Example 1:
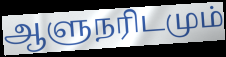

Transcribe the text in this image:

ஆளுநரிடமும்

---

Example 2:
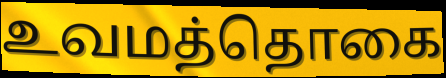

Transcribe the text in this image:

உவமத்தொகை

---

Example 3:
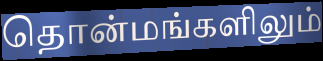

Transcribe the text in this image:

தொன்மங்களிலும்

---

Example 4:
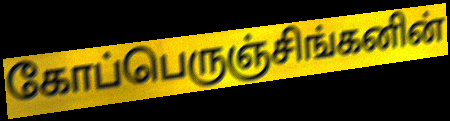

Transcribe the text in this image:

கோப்பெருஞ்சிங்கனின்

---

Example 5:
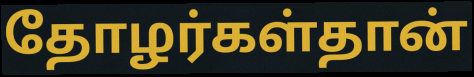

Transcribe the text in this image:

தோழர்கள்தான்